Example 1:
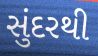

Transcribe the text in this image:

સુંદરથી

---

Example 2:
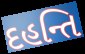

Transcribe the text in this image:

દહન્તિ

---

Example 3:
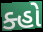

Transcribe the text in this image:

ક્હો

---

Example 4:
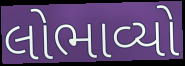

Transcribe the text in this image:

લોભાવ્યો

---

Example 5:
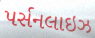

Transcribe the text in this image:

પર્સનલાઇઝ